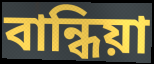
বান্ধিয়া